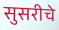
सुसरीचे